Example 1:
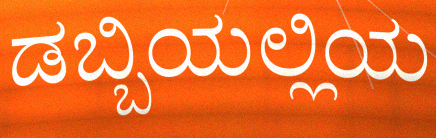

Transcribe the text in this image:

ಡಬ್ಬಿಯಲ್ಲಿಯ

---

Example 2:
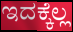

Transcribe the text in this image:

ಇದಕ್ಕೆಲ್ಲ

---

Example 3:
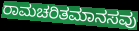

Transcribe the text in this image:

ರಾಮಚರಿತಮಾನಸವು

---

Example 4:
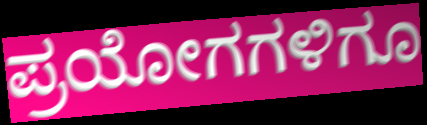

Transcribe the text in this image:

ಪ್ರಯೋಗಗಳಿಗೂ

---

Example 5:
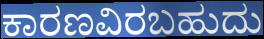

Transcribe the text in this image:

ಕಾರಣವಿರಬಹುದು